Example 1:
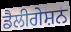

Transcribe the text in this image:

ਡੈਲੀਗੇਸ਼ਨ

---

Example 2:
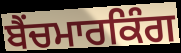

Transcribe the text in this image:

ਬੈਂਚਮਾਰਕਿੰਗ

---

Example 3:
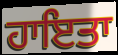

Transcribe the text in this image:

ਹਾਇਤਾ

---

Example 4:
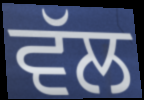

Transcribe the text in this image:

ਵੱਲ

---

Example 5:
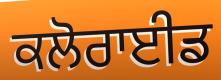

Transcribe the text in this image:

ਕਲੋਰਾਈਡ